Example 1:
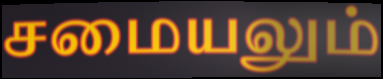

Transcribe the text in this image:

சமையலும்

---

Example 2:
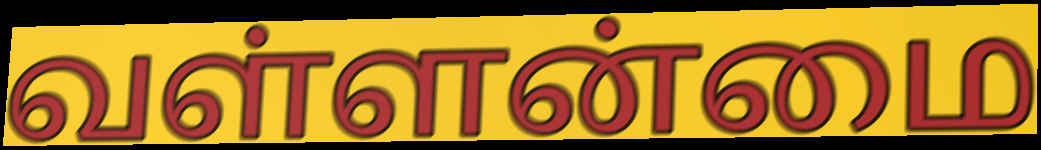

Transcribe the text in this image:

வள்ளன்மை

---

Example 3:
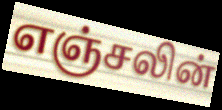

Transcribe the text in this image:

எஞ்சலின்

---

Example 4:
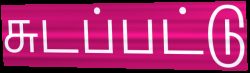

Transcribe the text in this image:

சுடப்பட்டு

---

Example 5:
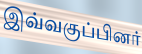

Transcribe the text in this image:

இவ்வகுப்பினர்